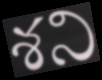
శని